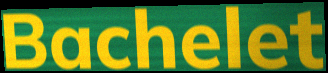
Bachelet